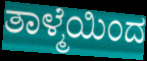
ತಾಳ್ಮೆಯಿಂದ